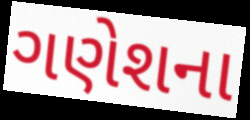
ગણેશના